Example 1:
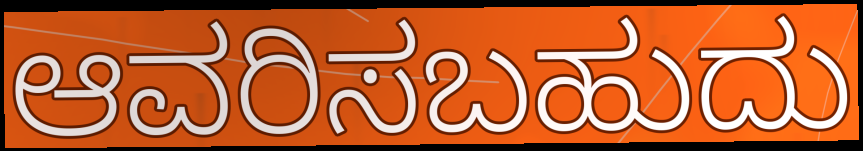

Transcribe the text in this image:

ಆವರಿಸಬಹುದು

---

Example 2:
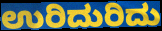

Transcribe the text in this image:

ಉರಿದುರಿದು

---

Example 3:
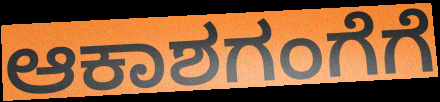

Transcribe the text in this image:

ಆಕಾಶಗಂಗೆಗೆ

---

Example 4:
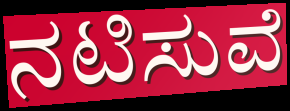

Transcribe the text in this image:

ನಟಿಸುವೆ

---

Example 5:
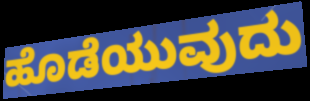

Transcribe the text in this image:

ಹೊಡೆಯುವುದು